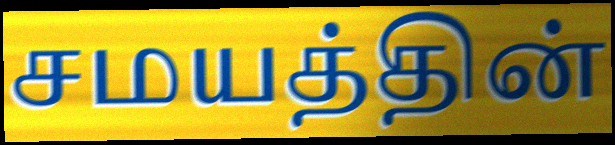
சமயத்தின்